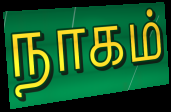
நாகம்